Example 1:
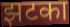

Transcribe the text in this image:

झटका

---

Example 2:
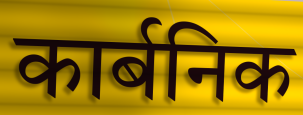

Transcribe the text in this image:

कार्बनिक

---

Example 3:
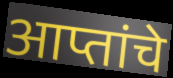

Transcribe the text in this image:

आप्तांचे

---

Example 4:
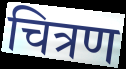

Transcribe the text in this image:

चित्रण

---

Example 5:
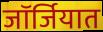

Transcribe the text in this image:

जॉर्जियात